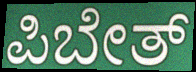
ಪಿಬೇತ್